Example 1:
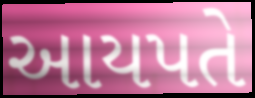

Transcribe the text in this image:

આયપતે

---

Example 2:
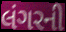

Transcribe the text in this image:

લંગરની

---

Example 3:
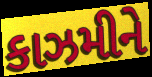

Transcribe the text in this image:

કાઝમીને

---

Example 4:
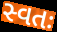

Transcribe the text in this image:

સ્વતઃ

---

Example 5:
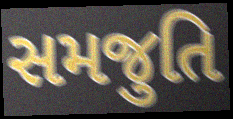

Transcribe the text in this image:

સમજુતિ